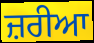
ਜ਼ਰੀਆ